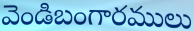
వెండిబంగారములు